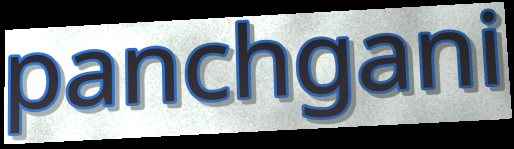
panchgani